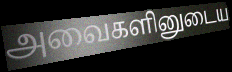
அவைகளினுடைய